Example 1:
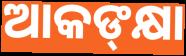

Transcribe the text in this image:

ଆକଙ୍‍କ୍ଷା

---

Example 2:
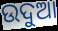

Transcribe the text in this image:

ଉଦୁଆ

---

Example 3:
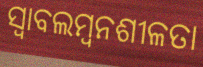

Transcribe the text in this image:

ସ୍ୱାବଲମ୍ବନଶୀଳତା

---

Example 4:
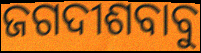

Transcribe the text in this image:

ଜଗଦୀଶବାବୁ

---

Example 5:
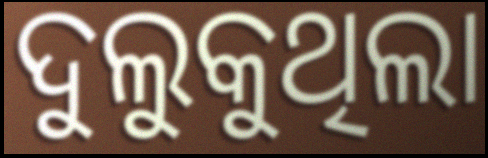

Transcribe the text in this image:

ଦୁଲୁକୁଥିଲା